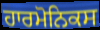
ਹਾਰਮੋਨਿਕਸ